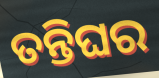
ତନ୍ତିଘର